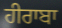
ਹੀਰਾਬਾ